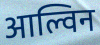
आल्विन